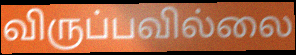
விருப்பவில்லை